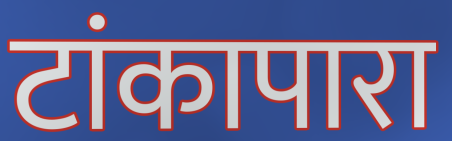
टांकापारा